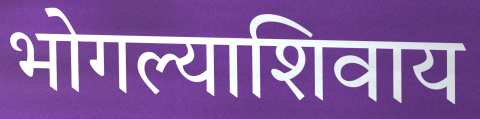
भोगल्याशिवाय